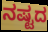
ನಷ್ಟದ